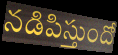
నడిపిస్తుందో